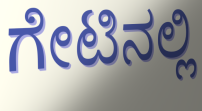
ಗೇಟಿನಲ್ಲಿ